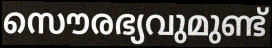
സൌരഭ്യവുമുണ്ട്